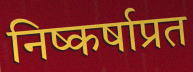
निष्कर्षाप्रत